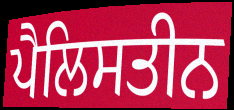
ਪੈਲਿਸਤੀਨ